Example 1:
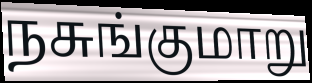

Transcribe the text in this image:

நசுங்குமாறு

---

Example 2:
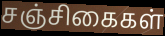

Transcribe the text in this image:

சஞ்சிகைகள்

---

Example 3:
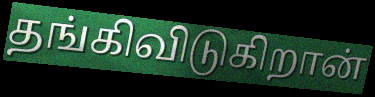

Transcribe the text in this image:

தங்கிவிடுகிறான்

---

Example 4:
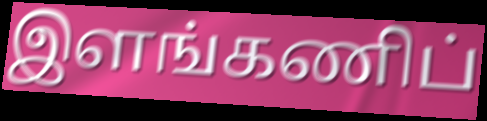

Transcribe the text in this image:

இளங்கணிப்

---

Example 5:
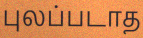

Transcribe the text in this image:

புலப்படாத